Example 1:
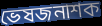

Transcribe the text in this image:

ভেষজনাশক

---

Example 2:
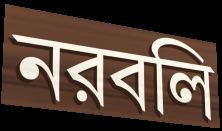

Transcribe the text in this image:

নরবলি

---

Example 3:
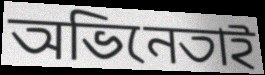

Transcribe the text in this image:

অভিনেতাই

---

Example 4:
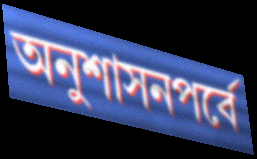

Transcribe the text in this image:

অনুশাসনপর্বে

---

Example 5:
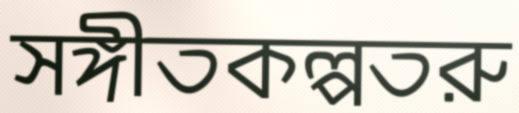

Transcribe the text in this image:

সঙ্গীতকল্পতরু